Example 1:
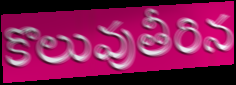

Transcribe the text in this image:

కొలువుతీరిన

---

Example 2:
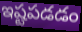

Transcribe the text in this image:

ఇష్టపడడం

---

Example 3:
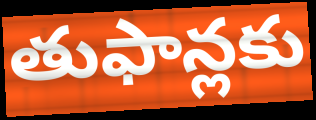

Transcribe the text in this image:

తుఫాన్లకు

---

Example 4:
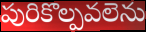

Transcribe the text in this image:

పురికొల్పవలెను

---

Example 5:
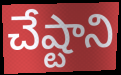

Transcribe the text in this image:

చేష్టాని